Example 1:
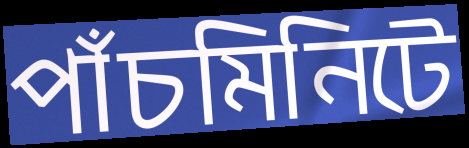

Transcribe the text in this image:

পাঁচমিনিটে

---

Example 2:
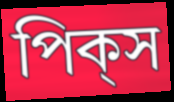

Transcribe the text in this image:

পিক্‌স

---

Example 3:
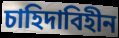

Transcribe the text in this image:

চাহিদাবিহীন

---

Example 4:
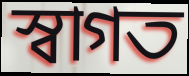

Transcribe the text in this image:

স্বাগত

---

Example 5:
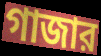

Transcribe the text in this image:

গাজার